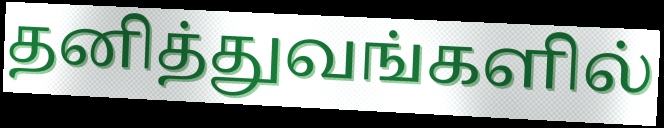
தனித்துவங்களில்